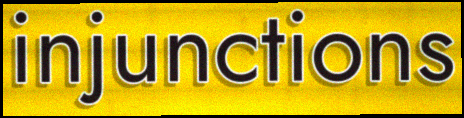
injunctions